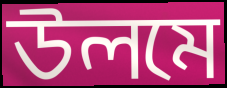
উলমে